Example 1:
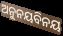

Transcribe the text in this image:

ଅନୁନୟବିନୟ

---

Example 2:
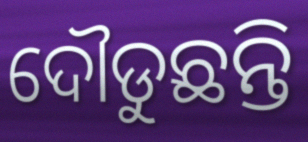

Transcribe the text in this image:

ଦୌଡୁଛନ୍ତି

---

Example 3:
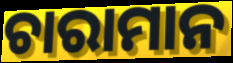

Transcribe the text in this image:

ଚାରାମାନ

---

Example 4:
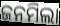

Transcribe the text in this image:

ଜନମିଲା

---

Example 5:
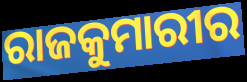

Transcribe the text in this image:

ରାଜକୁମାରୀର